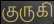
குருகி